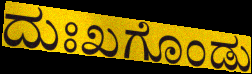
ದುಃಖಗೊಂಡು